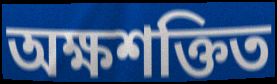
অক্ষশক্তিত